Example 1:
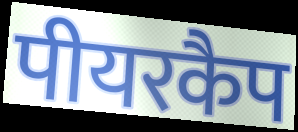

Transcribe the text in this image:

पीयरकैप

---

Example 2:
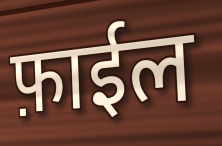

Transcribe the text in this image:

फ़ाईल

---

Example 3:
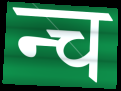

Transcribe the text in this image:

न्च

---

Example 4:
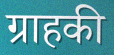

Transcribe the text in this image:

ग्राहकी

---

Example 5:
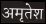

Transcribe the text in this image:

अमृतेश